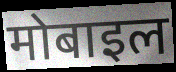
मोबाइल